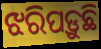
ଝରିପଡ଼ୁଛି